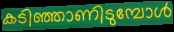
കടിഞ്ഞാണിടുമ്പോൾ